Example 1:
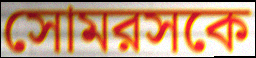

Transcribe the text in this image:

সোমরসকে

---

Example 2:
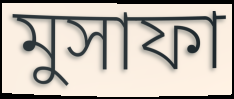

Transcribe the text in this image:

মুসাফা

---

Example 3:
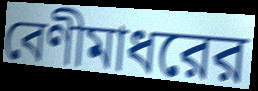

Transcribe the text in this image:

বেণীমাধরের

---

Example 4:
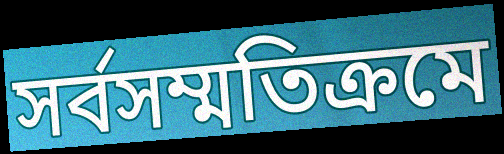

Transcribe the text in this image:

সর্বসম্মতিক্রমে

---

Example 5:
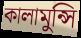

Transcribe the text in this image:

কালামুন্সি